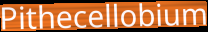
Pithecellobium